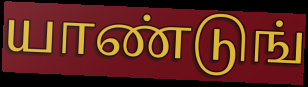
யாண்டுங்